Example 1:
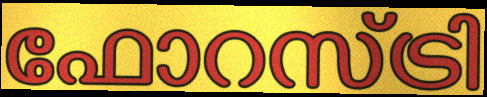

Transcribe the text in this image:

ഫോറസ്ട്രി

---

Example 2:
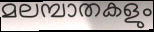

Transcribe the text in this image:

മലമ്പാതകളും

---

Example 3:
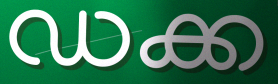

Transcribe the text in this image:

ഡക്ക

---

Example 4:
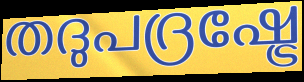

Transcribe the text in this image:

തദുപദ്രഷ്ട്രേ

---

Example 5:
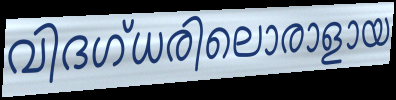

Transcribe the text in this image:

വിദഗ്ധരിലൊരാളായ